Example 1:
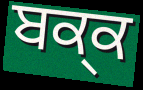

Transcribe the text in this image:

ਬਕ੍ਕ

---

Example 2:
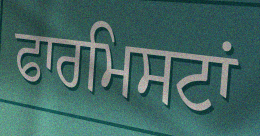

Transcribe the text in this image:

ਫਾਰਮਿਸਟਾਂ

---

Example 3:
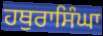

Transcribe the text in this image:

ਹਥੁਰਾਸਿੰਘਾ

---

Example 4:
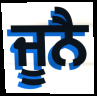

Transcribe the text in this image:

ਜੂਨੈ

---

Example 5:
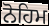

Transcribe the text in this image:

ਨੋਹਿਮ